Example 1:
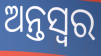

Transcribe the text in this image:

ଅନ୍ତସ୍ୱର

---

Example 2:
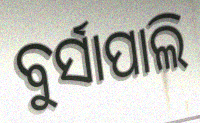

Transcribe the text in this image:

ବୁର୍ସାପାଲି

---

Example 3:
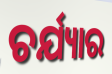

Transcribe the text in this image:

ଚର୍ଯ୍ୟାର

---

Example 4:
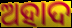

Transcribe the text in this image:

ଅହାଦ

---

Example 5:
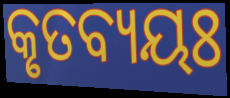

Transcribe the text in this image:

କୃତବ୍ୟୟଃ